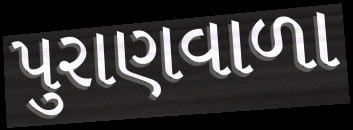
પુરાણવાળા